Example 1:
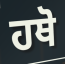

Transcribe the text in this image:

ਹਥੋ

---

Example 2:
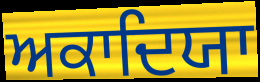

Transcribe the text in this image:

ਅਕਾਦਿਯਾ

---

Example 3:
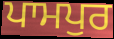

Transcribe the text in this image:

ਪਾਮਪੁਰ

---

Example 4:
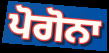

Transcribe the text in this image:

ਪੋਗੋਨਾ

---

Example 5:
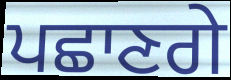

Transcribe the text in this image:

ਪਛਾਣਗੇ